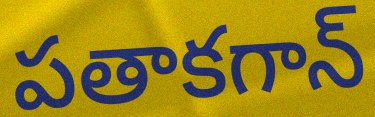
పతాకగాన్